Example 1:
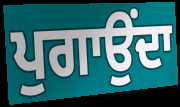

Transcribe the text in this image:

ਪੁਗਾਉਂਦਾ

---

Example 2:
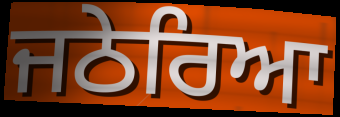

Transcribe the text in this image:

ਜਠੇਰਿਆ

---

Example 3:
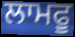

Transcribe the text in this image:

ਲਾਮਫੂ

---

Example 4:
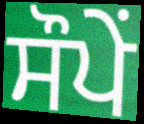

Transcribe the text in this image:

ਸੌਪੇਂ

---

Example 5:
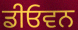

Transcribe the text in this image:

ਡੀਓਵਨ